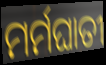
ମର୍ମଘାତୀ